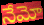
నేమో